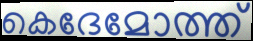
കെദേമോത്ത്